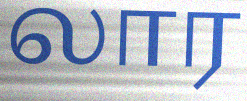
லார